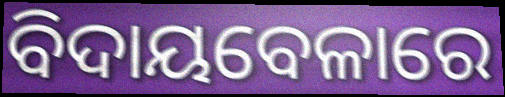
ବିଦାୟବେଳାରେ